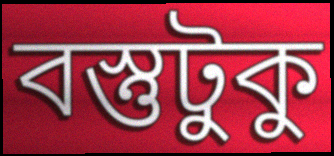
বস্তুটুকু